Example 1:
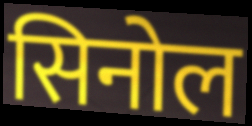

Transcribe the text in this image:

सिनोल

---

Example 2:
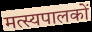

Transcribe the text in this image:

मत्स्यपालकों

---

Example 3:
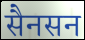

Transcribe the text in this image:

सैनसन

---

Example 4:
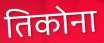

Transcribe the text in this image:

तिकोना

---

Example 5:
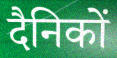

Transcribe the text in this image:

दैनिकों